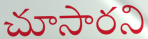
చూసారని